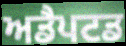
ਅਡੈਪਟਡ